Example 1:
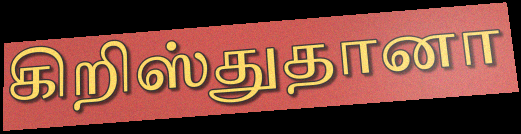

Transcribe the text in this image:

கிறிஸ்துதானா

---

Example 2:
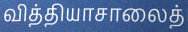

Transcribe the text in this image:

வித்தியாசாலைத்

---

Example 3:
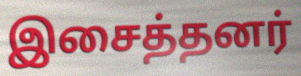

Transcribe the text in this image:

இசைத்தனர்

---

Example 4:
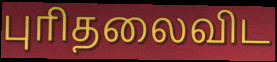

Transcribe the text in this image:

புரிதலைவிட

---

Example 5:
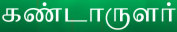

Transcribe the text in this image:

கண்டாருளர்